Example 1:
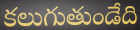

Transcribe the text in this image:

కలుగుతుండేది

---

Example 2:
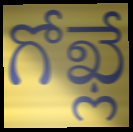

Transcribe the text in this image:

గోఖ్లే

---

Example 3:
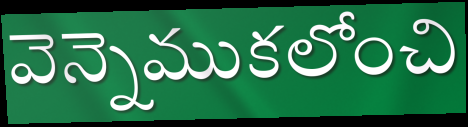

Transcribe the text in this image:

వెన్నెముకలోంచి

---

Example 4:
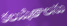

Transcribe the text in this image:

కలుషితాలను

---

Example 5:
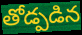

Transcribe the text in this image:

తోడ్పడిన